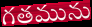
గతమును